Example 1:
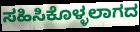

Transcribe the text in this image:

ಸಹಿಸಿಕೊಳ್ಳಲಾಗದ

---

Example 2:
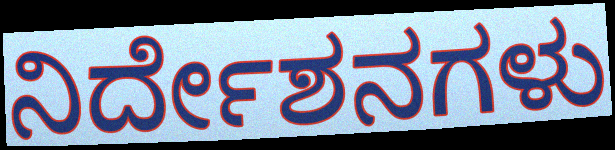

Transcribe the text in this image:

ನಿರ್ದೇಶನಗಳು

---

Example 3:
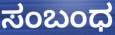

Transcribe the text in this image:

ಸಂಬಂಧ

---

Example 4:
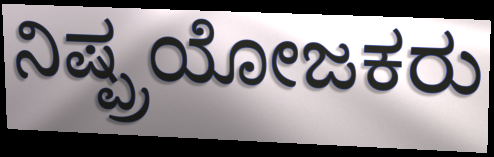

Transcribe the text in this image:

ನಿಷ್ಪ್ರಯೋಜಕರು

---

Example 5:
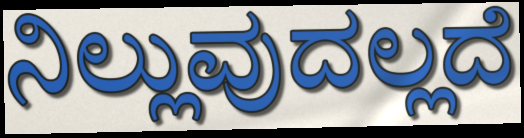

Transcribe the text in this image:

ನಿಲ್ಲುವುದಲ್ಲದೆ